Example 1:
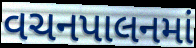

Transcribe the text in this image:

વચનપાલનમાં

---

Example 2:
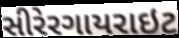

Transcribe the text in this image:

સીરેરગાયરાઇટ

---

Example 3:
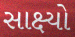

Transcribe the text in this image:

સાક્ષ્યો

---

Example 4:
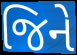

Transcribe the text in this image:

જિને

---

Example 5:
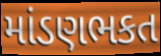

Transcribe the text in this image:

માંડણભકત